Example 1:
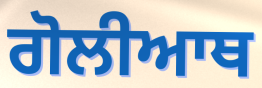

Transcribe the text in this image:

ਗੋਲੀਆਥ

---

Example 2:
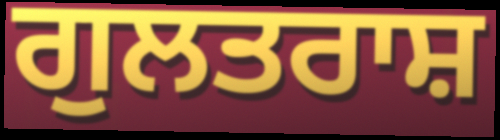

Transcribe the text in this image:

ਗੁਲਤਰਾਸ਼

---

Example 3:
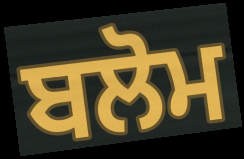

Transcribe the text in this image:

ਬਲੋਮ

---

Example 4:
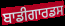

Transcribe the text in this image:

ਬਾਡੀਗਾਰਡਸ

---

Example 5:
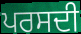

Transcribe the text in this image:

ਪਰਸਦੀ